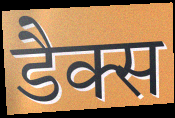
डैक्स